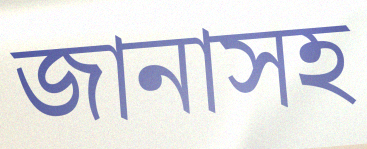
জানাসহ